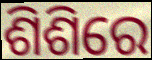
ଶିଶିରେ